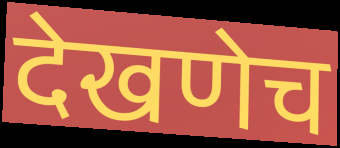
देखणेच